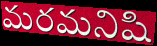
మరమనిషి